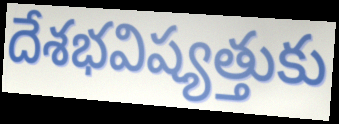
దేశభవిష్యత్తుకు